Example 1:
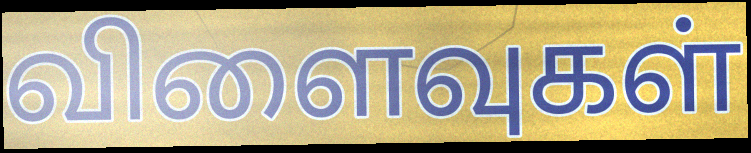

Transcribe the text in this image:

விளைவுகள்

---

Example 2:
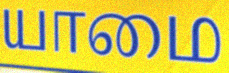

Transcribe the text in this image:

யாமை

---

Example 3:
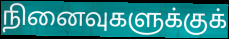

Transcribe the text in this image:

நினைவுகளுக்குக்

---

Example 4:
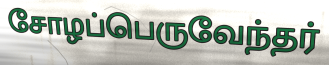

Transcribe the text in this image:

சோழப்பெருவேந்தர்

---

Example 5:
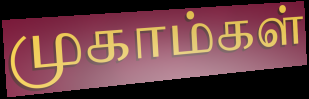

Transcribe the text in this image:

முகாம்கள்